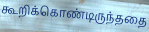
கூறிக்கொண்டிருந்ததை